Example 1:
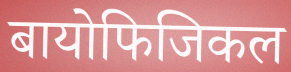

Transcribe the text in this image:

बायोफिजिकल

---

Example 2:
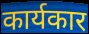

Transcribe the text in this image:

कार्यकार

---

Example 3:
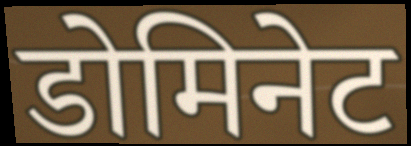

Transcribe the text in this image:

डोमिनेट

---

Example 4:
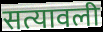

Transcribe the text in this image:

सत्यावली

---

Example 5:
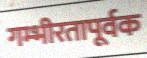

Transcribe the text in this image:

गम्भीरतापूर्वक